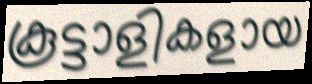
കൂട്ടാളികളായ